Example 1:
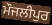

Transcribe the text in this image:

ਮੌਜਲੀਪੁਰ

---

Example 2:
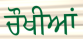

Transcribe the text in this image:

ਚੌਖੀਆਂ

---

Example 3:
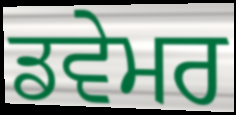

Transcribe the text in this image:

ਡਵੇਮਰ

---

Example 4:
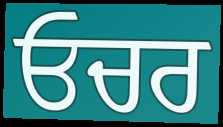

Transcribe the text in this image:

ਓਚਰ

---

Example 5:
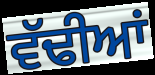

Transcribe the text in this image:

ਵੱਢੀਆਂ